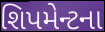
શિપમેન્ટના